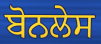
ਬੋਨਲੇਸ